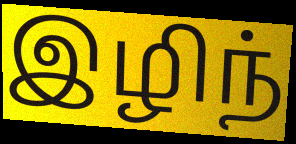
இழிந்